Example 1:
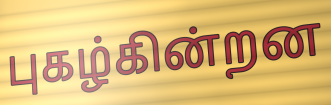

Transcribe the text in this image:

புகழ்கின்றன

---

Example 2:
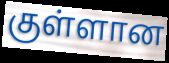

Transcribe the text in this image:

குள்ளான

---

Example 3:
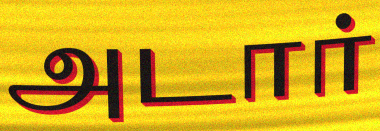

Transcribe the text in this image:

அடார்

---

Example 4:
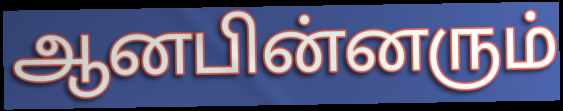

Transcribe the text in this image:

ஆனபின்னரும்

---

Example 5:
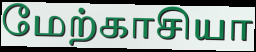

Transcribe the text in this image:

மேற்காசியா